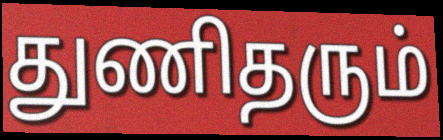
துணிதரும்